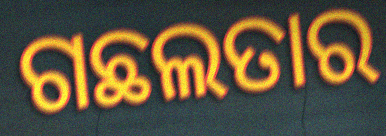
ଗଛଲତାର